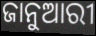
ଜାନୁଆରୀ